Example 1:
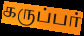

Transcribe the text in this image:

கருப்பர்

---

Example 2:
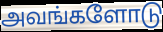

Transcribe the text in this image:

அவங்களோடு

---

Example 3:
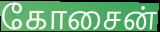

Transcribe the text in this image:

கோசைன்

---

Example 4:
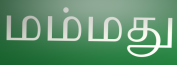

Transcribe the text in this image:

மம்மது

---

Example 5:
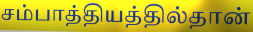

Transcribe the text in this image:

சம்பாத்தியத்தில்தான்